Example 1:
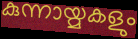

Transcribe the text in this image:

കുന്നായ്മകളും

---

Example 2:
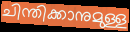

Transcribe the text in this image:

ചിന്തിക്കാനുമുള്ള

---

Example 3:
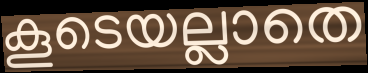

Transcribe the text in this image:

കൂടെയല്ലാതെ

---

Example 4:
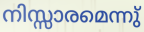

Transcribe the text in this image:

നിസ്സാരമെന്നു്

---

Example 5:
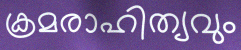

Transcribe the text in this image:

ക്രമരാഹിത്യവും